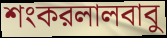
শংকরলালবাবু